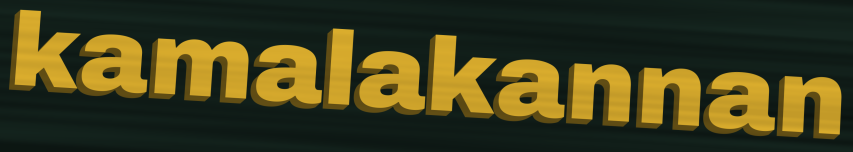
kamalakannan